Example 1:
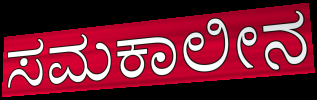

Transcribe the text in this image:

ಸಮಕಾಲೀನ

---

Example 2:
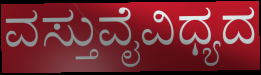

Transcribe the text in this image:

ವಸ್ತುವೈವಿಧ್ಯದ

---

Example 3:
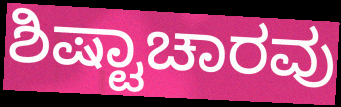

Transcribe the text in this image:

ಶಿಷ್ಟಾಚಾರವು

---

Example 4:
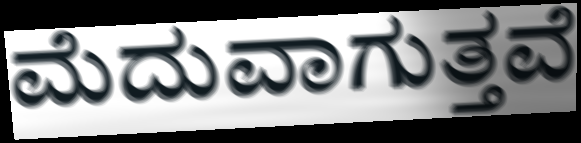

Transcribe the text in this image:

ಮೆದುವಾಗುತ್ತವೆ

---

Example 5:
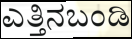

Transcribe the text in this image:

ಎತ್ತಿನಬಂಡಿ